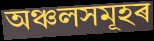
অঞ্চলসমূহৰ